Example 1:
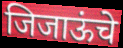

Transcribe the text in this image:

जिजाऊंचे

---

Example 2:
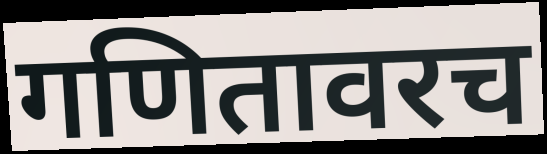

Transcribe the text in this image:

गणितावरच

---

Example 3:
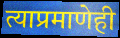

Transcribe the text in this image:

त्याप्रमाणेही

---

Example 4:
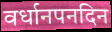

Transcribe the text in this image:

वर्धानपनदिन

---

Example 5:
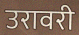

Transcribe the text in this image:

उरावरी